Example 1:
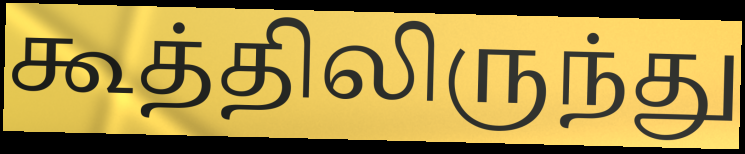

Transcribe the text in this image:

கூத்திலிருந்து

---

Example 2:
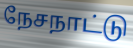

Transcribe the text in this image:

நேசநாட்டு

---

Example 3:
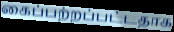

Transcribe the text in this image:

கைப்பற்றப்பட்டதாக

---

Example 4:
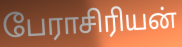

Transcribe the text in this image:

பேராசிரியன்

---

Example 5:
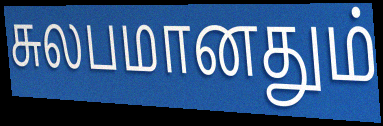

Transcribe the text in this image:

சுலபமானதும்